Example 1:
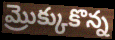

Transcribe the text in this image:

మ్రొక్కుకొన్న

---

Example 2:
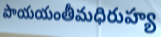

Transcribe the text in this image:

పాయయంతీమధిరుహ్య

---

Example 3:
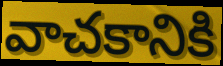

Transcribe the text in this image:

వాచకానికి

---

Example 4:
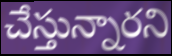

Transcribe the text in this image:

చేస్తున్నారని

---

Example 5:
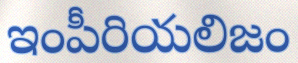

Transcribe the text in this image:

ఇంపీరియలిజం